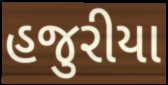
હજુરીયા